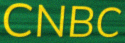
CNBC